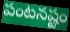
పంటనష్టం